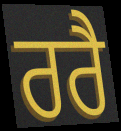
ਰਰੈ